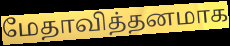
மேதாவித்தனமாக